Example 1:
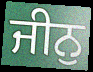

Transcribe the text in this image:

ਜੀਨੁ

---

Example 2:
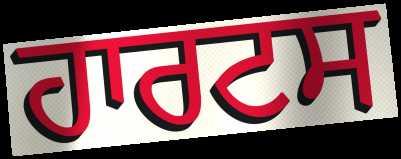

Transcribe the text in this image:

ਹਾਰਟਸ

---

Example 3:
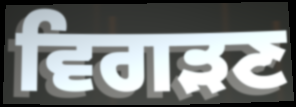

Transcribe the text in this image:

ਵਿਗੜਣ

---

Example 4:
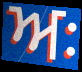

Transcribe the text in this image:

ਅਃ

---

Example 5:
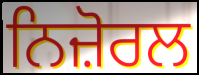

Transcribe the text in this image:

ਨਿਜ਼ੋਰਲ